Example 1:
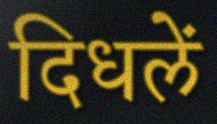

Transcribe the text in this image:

दिधलें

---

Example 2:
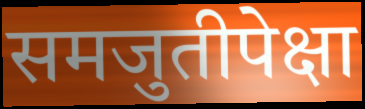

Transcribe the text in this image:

समजुतीपेक्षा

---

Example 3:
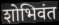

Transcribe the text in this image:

शोभिवंत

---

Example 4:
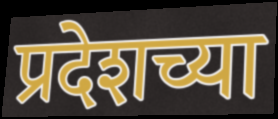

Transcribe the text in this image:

प्रदेशच्या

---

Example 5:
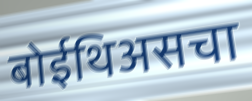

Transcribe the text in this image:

बोईथिअसचा